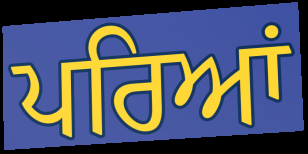
ਪਰਿਆਂ